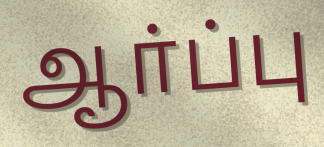
ஆர்ப்பு